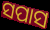
ସପାସ